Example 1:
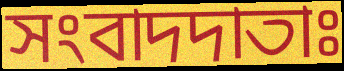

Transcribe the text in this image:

সংবাদদাতাঃ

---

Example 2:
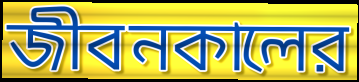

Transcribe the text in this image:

জীবনকালের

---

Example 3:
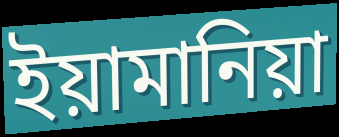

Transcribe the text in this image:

ইয়ামানিয়া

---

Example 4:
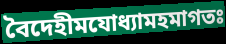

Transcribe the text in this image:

বৈদেহীমযোধ্যামহমাগতঃ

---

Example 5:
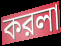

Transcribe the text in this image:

করলা